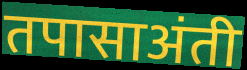
तपासाअंती